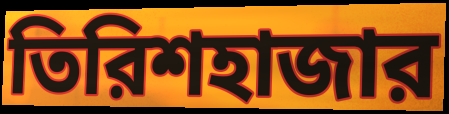
তিরিশহাজার